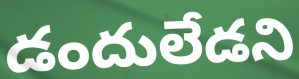
డందులేడని